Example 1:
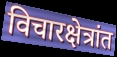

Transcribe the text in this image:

विचारक्षेत्रांत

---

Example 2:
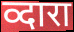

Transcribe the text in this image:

व्दारा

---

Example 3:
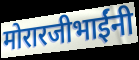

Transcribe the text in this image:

मोरारजीभाईंनी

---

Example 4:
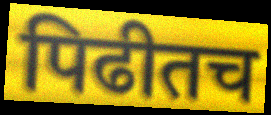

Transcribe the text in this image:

पिढीतच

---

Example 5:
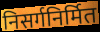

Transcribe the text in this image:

निसर्गनिर्मित